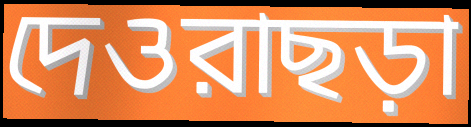
দেওরাছড়া